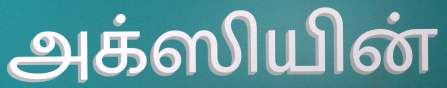
அக்ஸியின்